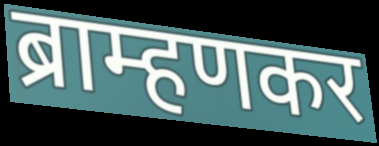
ब्राम्हणकर